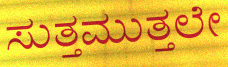
ಸುತ್ತಮುತ್ತಲೇ